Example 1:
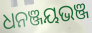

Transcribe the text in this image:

ଧନଞ୍ଜୟଭଞ୍ଜ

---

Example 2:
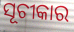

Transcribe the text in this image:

ସୂଚୀକାର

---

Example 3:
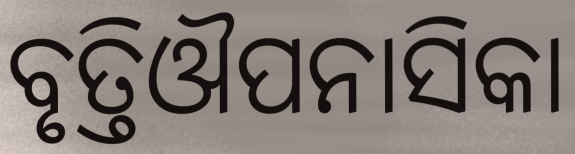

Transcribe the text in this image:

ବୃତ୍ତିଔପନାସିକା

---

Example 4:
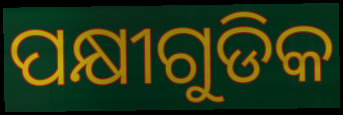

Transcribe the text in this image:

ପକ୍ଷୀଗୁଡିକ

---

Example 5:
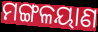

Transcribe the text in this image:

ମଙ୍ଗଳୟାଣ